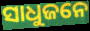
ସାଧୁଜନେ